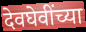
देवघेवींच्या